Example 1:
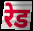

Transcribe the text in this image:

रेड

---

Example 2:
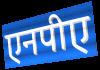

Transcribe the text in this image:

एनपीए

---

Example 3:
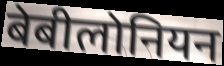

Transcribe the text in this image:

बेबीलोनियन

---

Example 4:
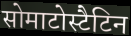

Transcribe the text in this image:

सोमाटोस्टैटिन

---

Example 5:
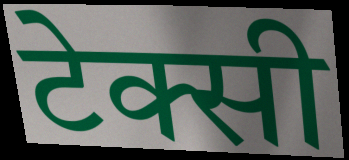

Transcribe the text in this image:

टेक्‍सी